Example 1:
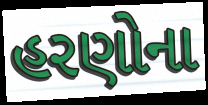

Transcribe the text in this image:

હરણોના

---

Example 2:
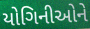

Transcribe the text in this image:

યોગિનીઓને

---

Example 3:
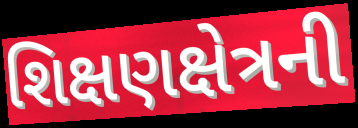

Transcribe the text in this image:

શિક્ષણક્ષેત્રની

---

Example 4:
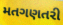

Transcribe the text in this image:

મતગણતરી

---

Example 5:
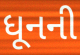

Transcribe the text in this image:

ધૂનની